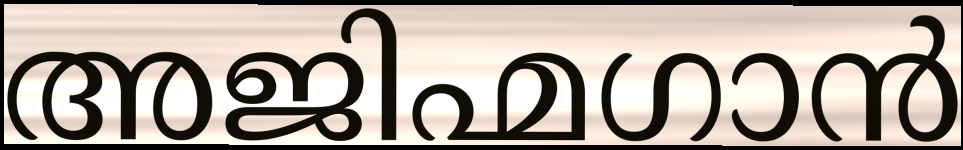
അജിഹ്മഗാൻ